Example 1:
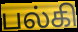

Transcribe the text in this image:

பல்கி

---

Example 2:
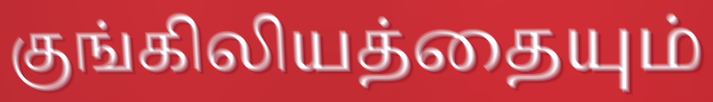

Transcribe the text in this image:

குங்கிலியத்தையும்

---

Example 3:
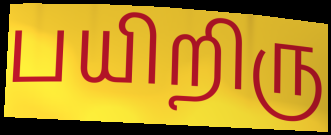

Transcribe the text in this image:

பயிறிரு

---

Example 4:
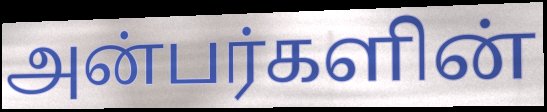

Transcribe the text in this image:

அன்பர்களின்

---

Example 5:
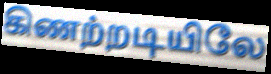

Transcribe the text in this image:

கிணற்றடியிலே